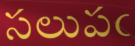
సలుపఁ